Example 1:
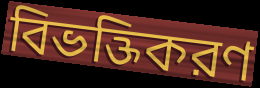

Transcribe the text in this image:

বিভক্তিকরণ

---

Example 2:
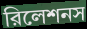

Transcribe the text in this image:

রিলেশনস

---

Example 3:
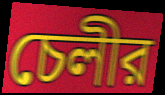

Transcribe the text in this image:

চেলীর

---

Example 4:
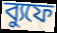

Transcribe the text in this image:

ব্যুফে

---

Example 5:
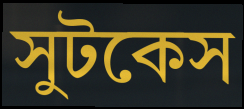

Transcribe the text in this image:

সুটকেস